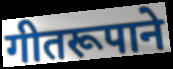
गीतरूपाने